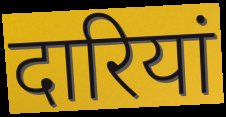
दारियां